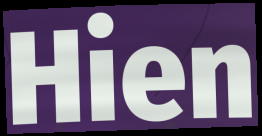
Hien